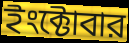
ইংক্টোবার